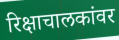
रिक्षाचालकांवर